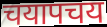
चयापचय